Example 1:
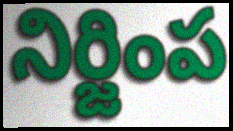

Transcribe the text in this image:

నిర్జింప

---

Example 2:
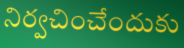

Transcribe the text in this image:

నిర్వచించేందుకు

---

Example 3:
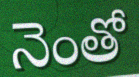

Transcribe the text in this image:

నెంతో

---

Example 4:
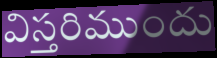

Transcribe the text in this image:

విస్తరిముందు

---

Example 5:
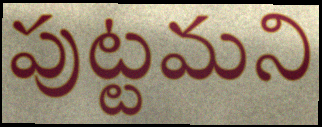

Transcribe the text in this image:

పుట్టమని